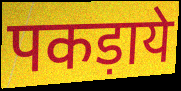
पकड़ाये